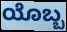
ಯೊಬ್ಬ